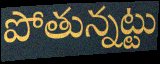
పోతున్నట్టు